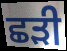
ਛੜੀ